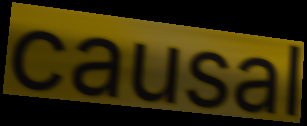
causal